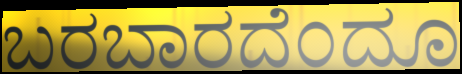
ಬರಬಾರದೆಂದೂ